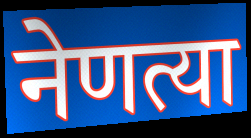
नेणत्या